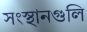
সংস্থানগুলি